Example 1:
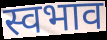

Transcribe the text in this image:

स्वभाव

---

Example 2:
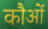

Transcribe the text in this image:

कौओं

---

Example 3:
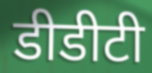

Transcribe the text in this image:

डीडीटी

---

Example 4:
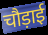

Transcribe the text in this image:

चौड़ाई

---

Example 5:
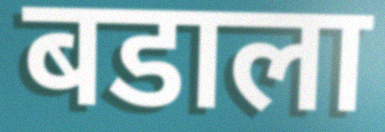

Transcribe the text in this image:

बडाला